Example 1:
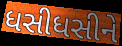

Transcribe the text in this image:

ધસીધસીને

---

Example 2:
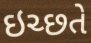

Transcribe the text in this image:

ઇચ્છતે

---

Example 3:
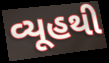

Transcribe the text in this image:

વ્યૂહથી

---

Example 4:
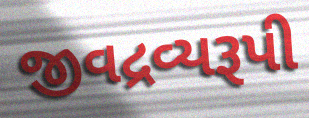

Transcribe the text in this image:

જીવદ્રવ્યરૂપી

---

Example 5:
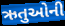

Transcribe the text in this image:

ઋતુઓની